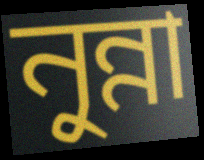
নুন্না